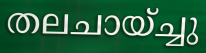
തലചായ്ച്ചു